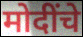
मोदींचे